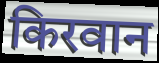
किरवान